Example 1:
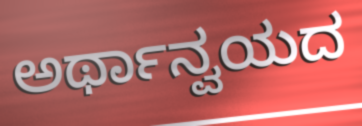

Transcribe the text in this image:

ಅರ್ಥಾನ್ವಯದ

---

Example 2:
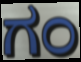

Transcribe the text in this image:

ಗಂ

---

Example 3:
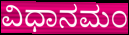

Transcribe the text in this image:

ವಿಧಾನಮಂ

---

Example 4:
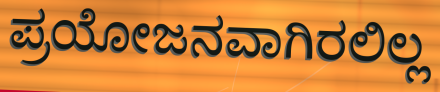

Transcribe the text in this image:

ಪ್ರಯೋಜನವಾಗಿರಲಿಲ್ಲ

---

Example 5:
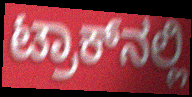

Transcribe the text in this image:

ಟ್ರಾಕ್‌ನಲ್ಲಿ